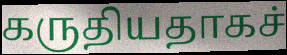
கருதியதாகச்